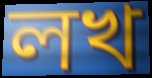
লখ